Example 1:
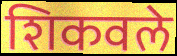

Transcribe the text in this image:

शिकवले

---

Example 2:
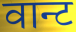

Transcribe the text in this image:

वान्ट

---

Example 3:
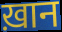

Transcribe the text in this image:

ख़ान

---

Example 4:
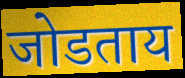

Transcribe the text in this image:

जोडताय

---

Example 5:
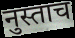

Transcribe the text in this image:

नुस्ताच